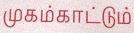
முகம்காட்டும்